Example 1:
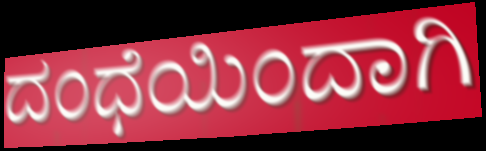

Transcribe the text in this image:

ದಂಧೆಯಿಂದಾಗಿ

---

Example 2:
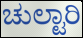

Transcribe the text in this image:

ಚುಲ್ಟಾರಿ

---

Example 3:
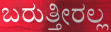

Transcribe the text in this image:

ಬರುತ್ತೀರಲ್ಲ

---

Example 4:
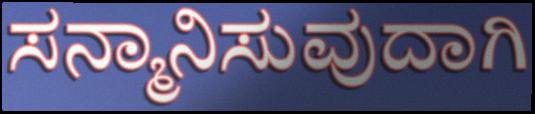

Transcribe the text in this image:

ಸನ್ಮಾನಿಸುವುದಾಗಿ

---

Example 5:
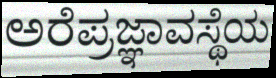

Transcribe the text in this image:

ಅರೆಪ್ರಜ್ಞಾವಸ್ಥೆಯ